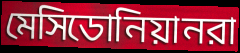
মেসিডোনিয়ানরা